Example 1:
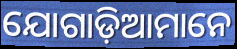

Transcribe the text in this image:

ଯୋଗାଡ଼ିଆମାନେ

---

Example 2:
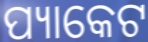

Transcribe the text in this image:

ପ୍ୟାକେଟ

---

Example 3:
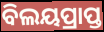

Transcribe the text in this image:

ବିଲୟପ୍ରାପ୍ତ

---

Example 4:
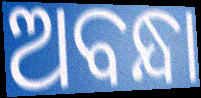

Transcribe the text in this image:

ଅବନ୍ଧା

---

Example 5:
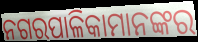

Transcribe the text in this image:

ନଗରପାଳିକାମାନଙ୍କର